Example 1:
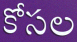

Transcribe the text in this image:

కోసల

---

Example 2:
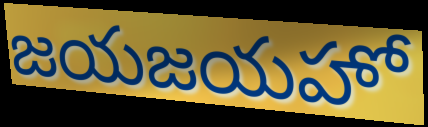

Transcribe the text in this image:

జయజయహో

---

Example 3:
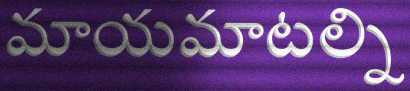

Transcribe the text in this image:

మాయమాటల్ని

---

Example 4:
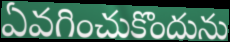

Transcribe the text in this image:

ఏవగించుకొందును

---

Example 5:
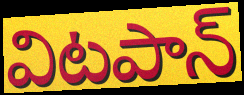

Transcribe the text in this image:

విటపాన్